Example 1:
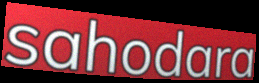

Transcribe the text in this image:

sahodara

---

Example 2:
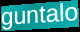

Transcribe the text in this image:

guntalo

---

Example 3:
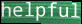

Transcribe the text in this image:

helpful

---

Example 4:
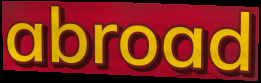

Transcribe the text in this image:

abroad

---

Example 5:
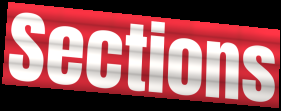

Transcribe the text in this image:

Sections